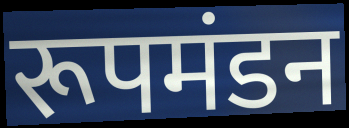
रूपमंडन